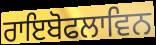
ਰਾਇਬੋਫਲਾਵਿਨ